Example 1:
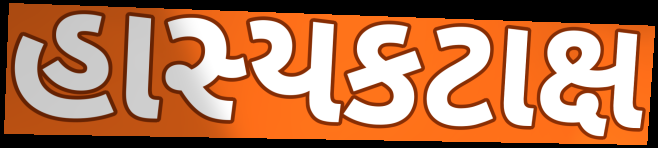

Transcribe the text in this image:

હાસ્યકટાક્ષ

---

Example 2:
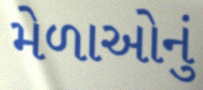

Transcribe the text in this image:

મેળાઓનું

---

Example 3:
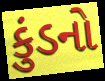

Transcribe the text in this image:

કુંડનો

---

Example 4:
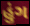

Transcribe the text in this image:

હુંગ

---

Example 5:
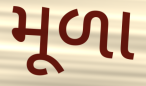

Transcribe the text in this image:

મૂળા